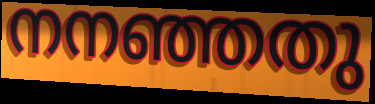
നനഞ്ഞതു